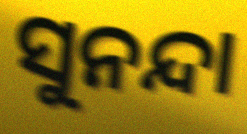
ସୁନନ୍ଦା